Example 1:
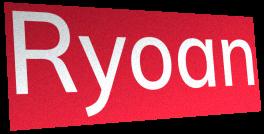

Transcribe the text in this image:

Ryoan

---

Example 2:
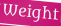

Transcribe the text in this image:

Weight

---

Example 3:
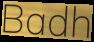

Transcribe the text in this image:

Badh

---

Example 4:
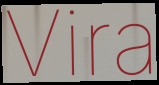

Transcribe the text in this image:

Vira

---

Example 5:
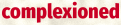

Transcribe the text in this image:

complexioned